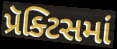
પ્રૅક્ટિસમાં